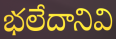
భలేదానివి